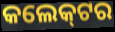
କଲେକ୍‌ଟର